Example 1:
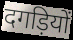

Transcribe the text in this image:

दगड़ियों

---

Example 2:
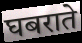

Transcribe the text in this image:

घबराते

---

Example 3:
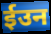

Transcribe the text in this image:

ईउन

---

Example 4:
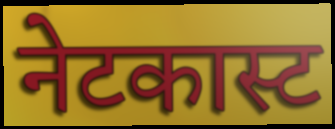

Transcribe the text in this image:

नेटकास्ट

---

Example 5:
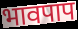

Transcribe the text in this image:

भावपाप